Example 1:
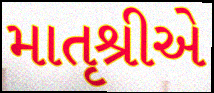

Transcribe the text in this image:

માતૃશ્રીએ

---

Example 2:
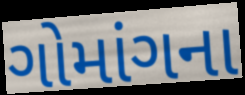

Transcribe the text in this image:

ગોમાંગના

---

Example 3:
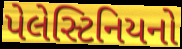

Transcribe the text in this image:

પેલેસ્ટિનિયનો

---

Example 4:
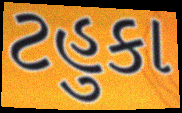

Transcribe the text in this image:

ટહુકા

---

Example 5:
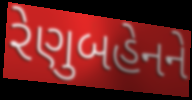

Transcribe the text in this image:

રેણુબહેનને